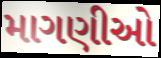
માગણીઓ